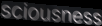
sciousness